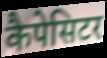
कैपेसिटर